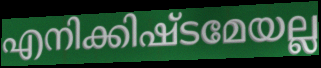
എനിക്കിഷ്ടമേയല്ല